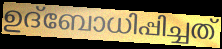
ഉദ്ബോധിപ്പിച്ചത്